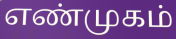
எண்முகம்